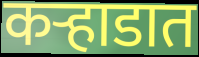
कऱ्हाडात